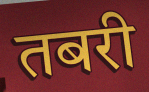
तबरी